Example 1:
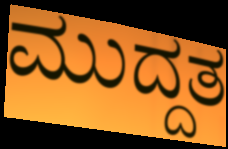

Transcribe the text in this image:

ಮುದ್ದತ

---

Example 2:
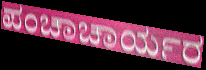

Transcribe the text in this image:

ಪಂಚಾಚಾರ್ಯರ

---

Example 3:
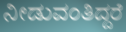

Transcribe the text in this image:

ನೀಡುವಂತಿದ್ದರೆ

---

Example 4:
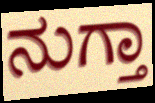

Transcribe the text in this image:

ನುಗ್ತಾ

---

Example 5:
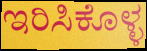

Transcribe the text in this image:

ಇರಿಸಿಕೊಳ್ಳ